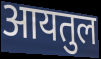
आयतुल